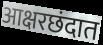
आक्षरछंदात